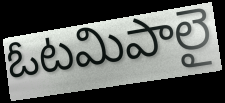
ఓటమిపాలై